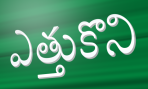
ఎత్తుకొని